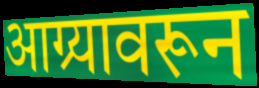
आग्र्यावरून